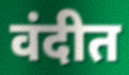
वंदीत